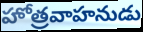
హోత్రవాహనుడు